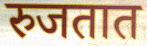
रुजतात